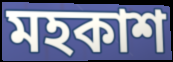
মহকাশ